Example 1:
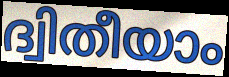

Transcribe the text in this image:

ദ്വിതീയാം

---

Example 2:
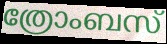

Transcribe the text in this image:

ത്രോംബസ്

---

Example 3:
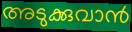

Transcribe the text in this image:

അടുക്കുവാൻ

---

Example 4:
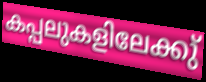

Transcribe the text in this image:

കപ്പലുകളിലേക്കു്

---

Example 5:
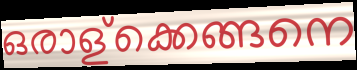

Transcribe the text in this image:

ഒരാള്ക്കെങ്ങനെ